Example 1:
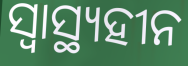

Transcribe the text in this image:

ସ୍ୱାସ୍ଥ୍ୟହୀନ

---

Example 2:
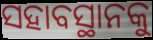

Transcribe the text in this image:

ସହାବସ୍ଥାନକୁ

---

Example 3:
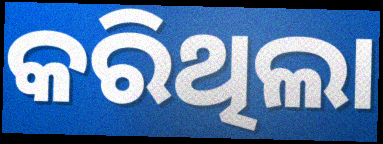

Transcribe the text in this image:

କରିଥିଲା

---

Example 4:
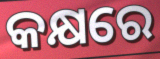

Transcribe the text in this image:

କକ୍ଷରେ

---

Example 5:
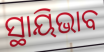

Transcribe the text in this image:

ସ୍ଥାୟିଭାବ